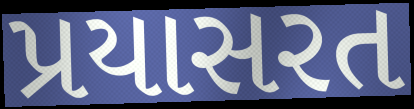
પ્રયાસરત